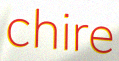
chire